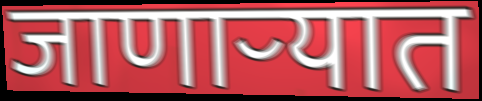
जाणाऱ्यात